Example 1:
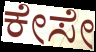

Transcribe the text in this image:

ಕೇಸೇ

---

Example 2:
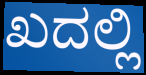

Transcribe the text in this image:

ಖದಲ್ಲಿ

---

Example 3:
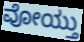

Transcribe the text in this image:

ವೋಯ್ತು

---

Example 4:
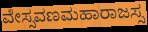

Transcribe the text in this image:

ವೇಸ್ಸವಣಮಹಾರಾಜಸ್ಸ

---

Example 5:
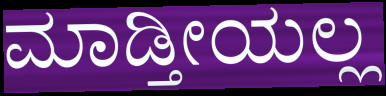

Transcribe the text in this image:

ಮಾಡ್ತೀಯಲ್ಲ